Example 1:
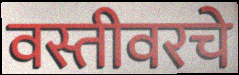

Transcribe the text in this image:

वस्तीवरचे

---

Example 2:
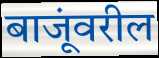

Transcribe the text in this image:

बाजूंवरील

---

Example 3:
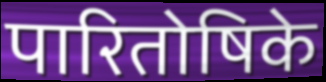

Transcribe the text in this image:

पारितोषिके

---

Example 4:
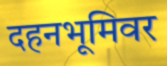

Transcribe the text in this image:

दहनभूमिवर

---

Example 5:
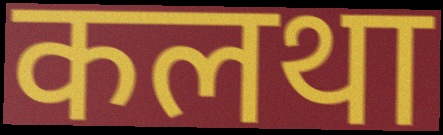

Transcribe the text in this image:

कलथा